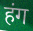
हंग